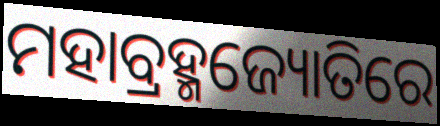
ମହାବ୍ରହ୍ମଜ୍ୟୋତିରେ